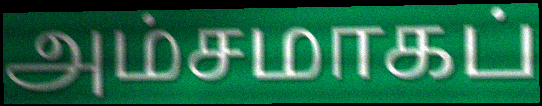
அம்சமாகப்